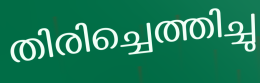
തിരിച്ചെത്തിച്ചു